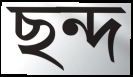
ছন্দ